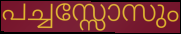
പച്ചസ്സോസും